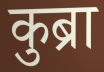
कुब्रा